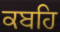
ਕਬਹਿ